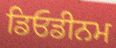
ਡਿਓਡੀਨਮ